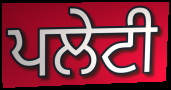
ਪਲੇਟੀ